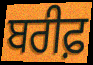
ਬਰੀਫ਼